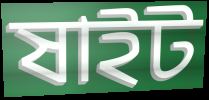
ষাইট